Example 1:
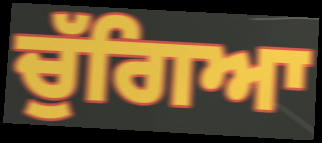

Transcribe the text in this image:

ਚੁੱਗਿਆ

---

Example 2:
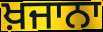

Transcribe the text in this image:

ਖ਼ਜਾਨਾ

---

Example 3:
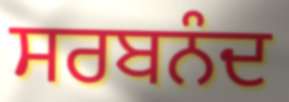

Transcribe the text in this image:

ਸਰਬਨੰਦ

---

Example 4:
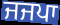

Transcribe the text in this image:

ਜਜਪਾ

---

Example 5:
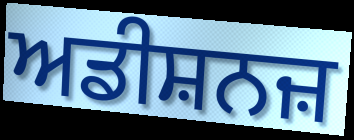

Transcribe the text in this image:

ਅਡੀਸ਼ਨਜ਼